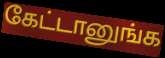
கேட்டானுங்க